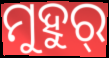
ମୁହୁର୍